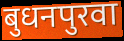
बुधनपुरवा